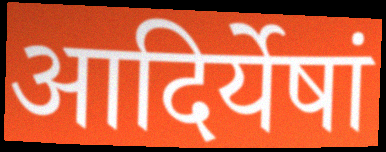
आदिर्येषां